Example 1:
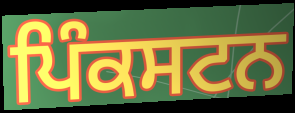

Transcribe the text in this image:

ਪਿੰਕਸਟਨ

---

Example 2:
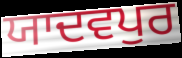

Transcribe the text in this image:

ਯਾਦਵਪੁਰ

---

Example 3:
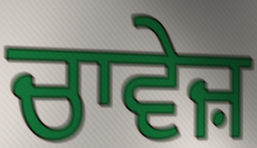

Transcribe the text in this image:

ਚਾਵੇਜ਼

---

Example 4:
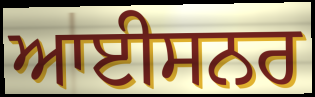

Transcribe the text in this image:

ਆਈਸਨਰ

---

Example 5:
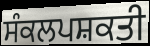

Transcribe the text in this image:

ਸੰਕਲਪਸ਼ਕਤੀ